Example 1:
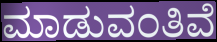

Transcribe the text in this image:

ಮಾಡುವಂತಿವೆ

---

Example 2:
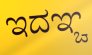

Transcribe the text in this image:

ಇದಞ್ಚ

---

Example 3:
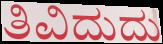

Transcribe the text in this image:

ತಿವಿದುದು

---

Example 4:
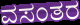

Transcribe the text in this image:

ವಸಂತರ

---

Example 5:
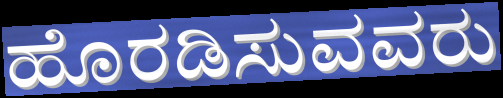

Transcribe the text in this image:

ಹೊರಡಿಸುವವರು